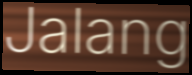
Jalang